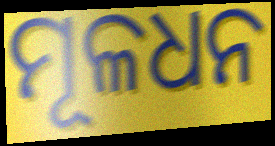
ମୂଳଧନ